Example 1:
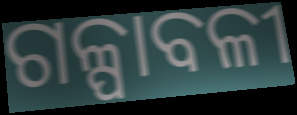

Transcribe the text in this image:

ଗଳ୍ପାବଳୀ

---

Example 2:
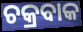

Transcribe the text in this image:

ଚକ୍ରବାକ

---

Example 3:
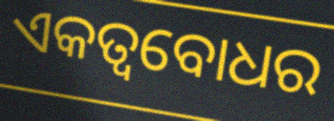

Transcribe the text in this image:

ଏକତ୍ୱବୋଧର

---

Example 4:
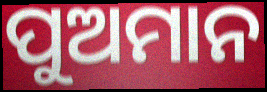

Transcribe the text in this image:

ପୁଅମାନ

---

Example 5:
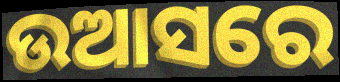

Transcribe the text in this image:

ଉଆସରେ